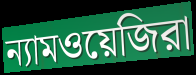
ন্যামওয়েজিরা